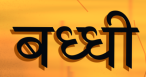
बध्धी